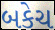
બકેચ